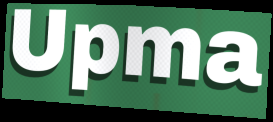
Upma